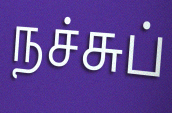
நச்சுப்